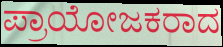
ಪ್ರಾಯೋಜಕರಾದ